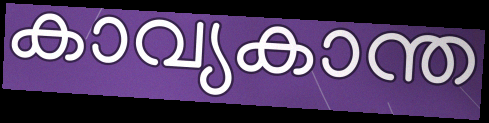
കാവ്യകാന്ത